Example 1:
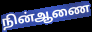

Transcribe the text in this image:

நின்ஆணை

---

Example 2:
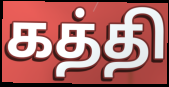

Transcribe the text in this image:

கத்தி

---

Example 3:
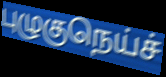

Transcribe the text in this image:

புழுகுநெய்ச்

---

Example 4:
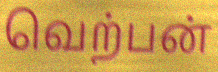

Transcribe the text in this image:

வெற்பன்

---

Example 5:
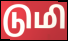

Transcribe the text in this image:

டுமி